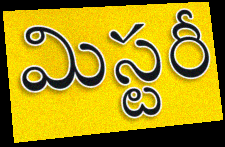
మిస్టరీ